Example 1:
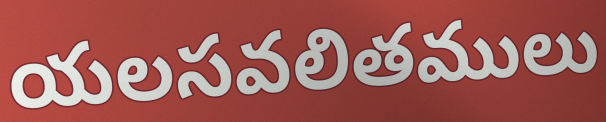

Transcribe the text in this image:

యలసవలితములు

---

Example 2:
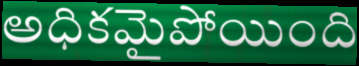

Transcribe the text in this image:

అధికమైపోయింది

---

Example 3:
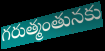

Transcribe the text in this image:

గరుత్మంతునకు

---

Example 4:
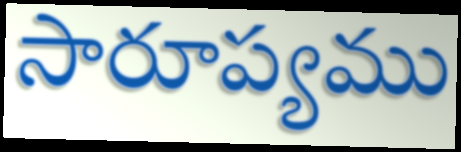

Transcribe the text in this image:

సారూప్యము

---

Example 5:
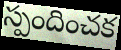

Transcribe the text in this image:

స్పందించక